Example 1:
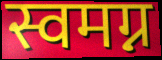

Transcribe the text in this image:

स्वमग्न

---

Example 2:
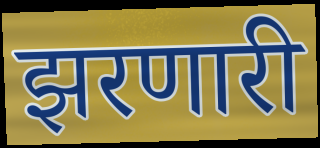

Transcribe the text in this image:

झरणारी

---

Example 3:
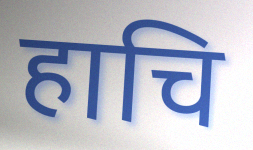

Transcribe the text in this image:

हाचि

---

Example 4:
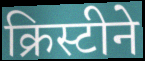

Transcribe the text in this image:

क्रिस्टीने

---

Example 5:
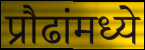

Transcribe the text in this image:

प्रौढांमध्ये